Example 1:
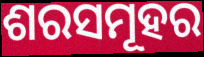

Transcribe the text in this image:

ଶରସମୂହର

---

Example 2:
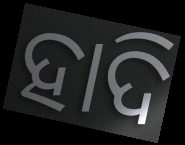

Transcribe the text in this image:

ହାଦି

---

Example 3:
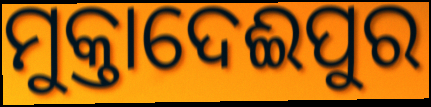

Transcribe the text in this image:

ମୁକ୍ତାଦେଈପୁର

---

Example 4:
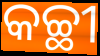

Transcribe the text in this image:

କଚ୍ଛୀ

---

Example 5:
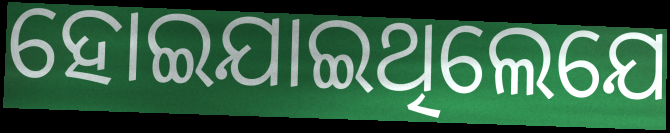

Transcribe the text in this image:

ହୋଇଯାଇଥିଲେଯେ